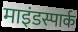
माइंडस्पार्क